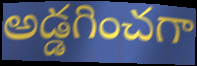
అడ్డగించగా